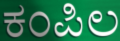
ಕಂಪಿಲ